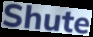
Shute